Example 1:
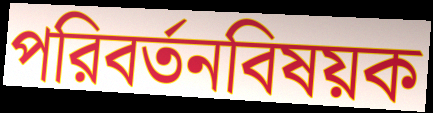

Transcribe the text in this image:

পরিবর্তনবিষয়ক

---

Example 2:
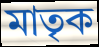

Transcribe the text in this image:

মাতৃক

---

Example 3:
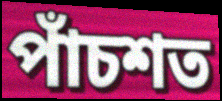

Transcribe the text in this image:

পাঁচশত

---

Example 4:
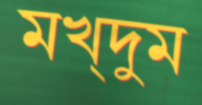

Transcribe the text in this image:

মখ্দুম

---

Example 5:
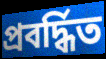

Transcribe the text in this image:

প্রবর্দ্ধিত